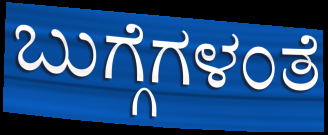
ಬುಗ್ಗೆಗಳಂತೆ